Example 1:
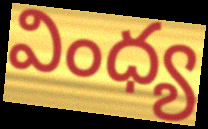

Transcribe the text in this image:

వింధ్య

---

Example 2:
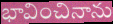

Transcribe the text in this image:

భావించినాను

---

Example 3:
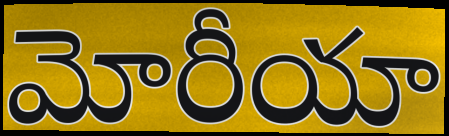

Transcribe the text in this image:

మోరీయా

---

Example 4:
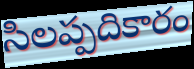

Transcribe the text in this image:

సిలప్పదికారం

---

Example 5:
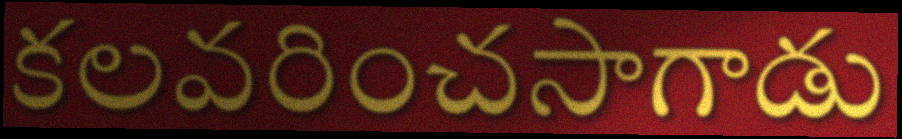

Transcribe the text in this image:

కలవరించసాగాడు